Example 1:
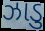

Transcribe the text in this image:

ઝાડુ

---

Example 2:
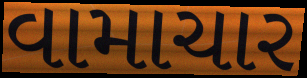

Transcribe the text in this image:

વામાચાર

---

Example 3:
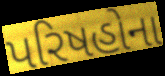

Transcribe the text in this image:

પરિષહોના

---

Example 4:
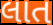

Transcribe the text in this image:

લાત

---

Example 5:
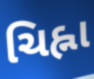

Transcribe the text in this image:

ચિહ્ના